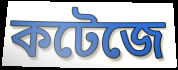
কটেজে